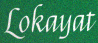
Lokayat